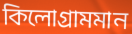
কিলোগ্ৰামমান